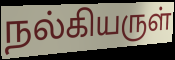
நல்கியருள்